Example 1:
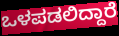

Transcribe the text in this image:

ಒಳಪಡಲಿದ್ದಾರೆ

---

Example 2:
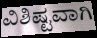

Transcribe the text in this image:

ವಿಶಿಷ್ಟವಾಗಿ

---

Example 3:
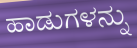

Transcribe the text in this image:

ಹಾಡುಗಳನ್ನು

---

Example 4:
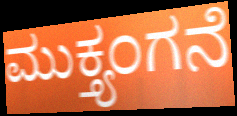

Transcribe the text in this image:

ಮುಕ್ತ್ಯಂಗನೆ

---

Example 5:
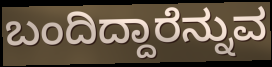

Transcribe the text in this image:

ಬಂದಿದ್ದಾರೆನ್ನುವ